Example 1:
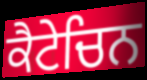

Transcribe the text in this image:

ਕੈਟੇਚਿਨ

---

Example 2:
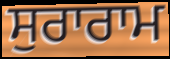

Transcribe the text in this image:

ਸੁਰਾਰਾਮ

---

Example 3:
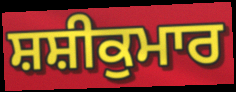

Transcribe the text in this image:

ਸ਼ਸ਼ੀਕੁਮਾਰ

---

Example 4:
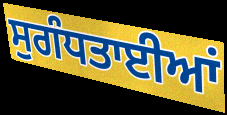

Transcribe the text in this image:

ਸੁਗੰਧਤਾਈਆਂ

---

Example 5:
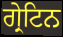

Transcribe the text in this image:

ਗ੍ਰੇਟਿਨ